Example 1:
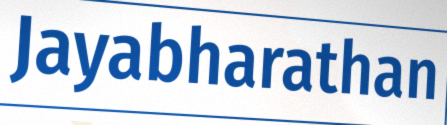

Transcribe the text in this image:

Jayabharathan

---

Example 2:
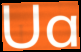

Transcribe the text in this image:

Ua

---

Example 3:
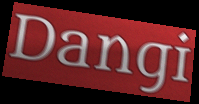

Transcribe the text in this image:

Dangi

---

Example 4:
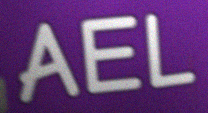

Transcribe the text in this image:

AEL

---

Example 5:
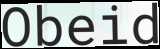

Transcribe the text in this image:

Obeid